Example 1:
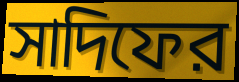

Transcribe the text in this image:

সাদিফের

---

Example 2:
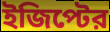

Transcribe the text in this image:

ইজিপ্টের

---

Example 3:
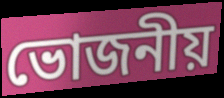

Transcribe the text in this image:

ভোজনীয়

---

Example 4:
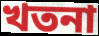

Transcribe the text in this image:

খতনা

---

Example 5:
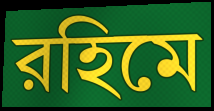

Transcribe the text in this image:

রহিমে